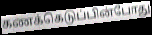
கணக்கெடுப்பின்போது